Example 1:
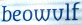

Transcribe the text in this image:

beowulf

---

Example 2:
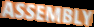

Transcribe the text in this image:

ASSEMBLY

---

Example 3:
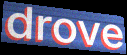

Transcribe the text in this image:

drove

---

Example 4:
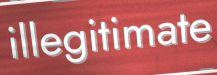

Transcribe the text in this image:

illegitimate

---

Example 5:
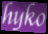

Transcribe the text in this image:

hyko